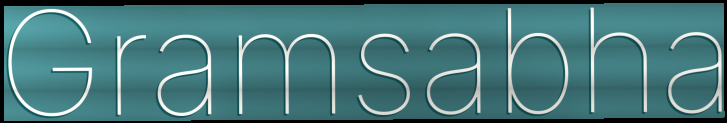
Gramsabha